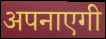
अपनाएगी